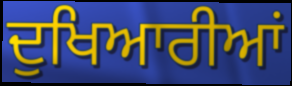
ਦੁਖਿਆਰੀਆਂ